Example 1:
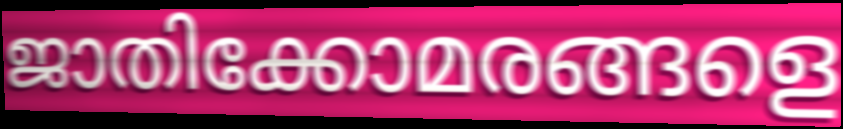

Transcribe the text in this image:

ജാതിക്കോമരങ്ങളെ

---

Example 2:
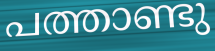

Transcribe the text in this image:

പത്താണ്ടു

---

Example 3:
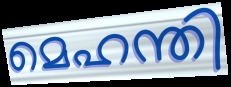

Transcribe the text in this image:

മെഹന്തി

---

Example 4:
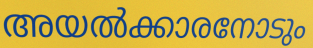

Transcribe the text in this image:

അയൽക്കാരനോടും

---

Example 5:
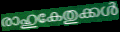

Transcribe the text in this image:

രാഹുകേതുക്കൾ